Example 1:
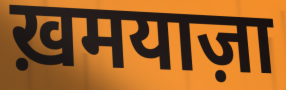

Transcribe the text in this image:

ख़मयाज़ा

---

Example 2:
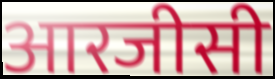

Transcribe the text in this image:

आरजीसी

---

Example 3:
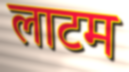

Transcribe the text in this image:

लाटम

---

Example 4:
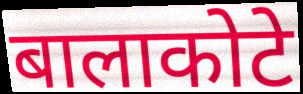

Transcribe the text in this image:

बालाकोटे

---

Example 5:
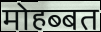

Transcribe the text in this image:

मोहब्‍बत